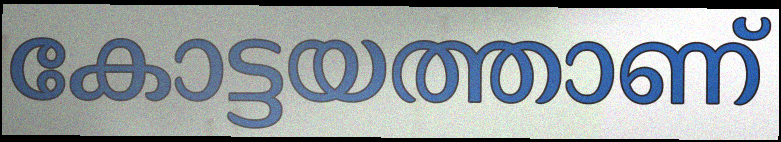
കോട്ടയത്താണ്